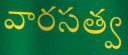
వారసత్వ